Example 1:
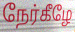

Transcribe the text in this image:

நேர்கீழே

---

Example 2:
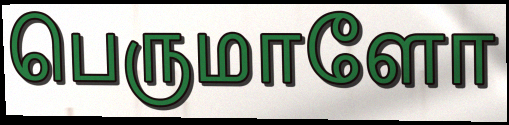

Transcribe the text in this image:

பெருமாளோ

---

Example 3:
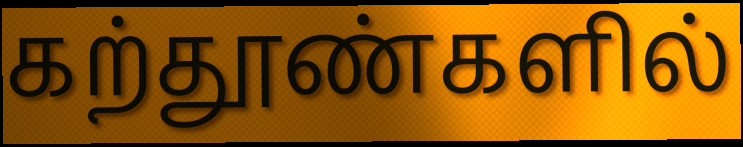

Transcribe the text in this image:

கற்தூண்களில்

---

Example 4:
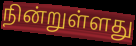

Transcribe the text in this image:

நின்றுள்ளது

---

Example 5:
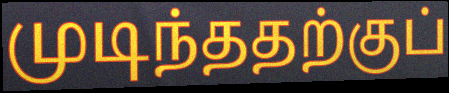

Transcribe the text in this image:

முடிந்ததற்குப்